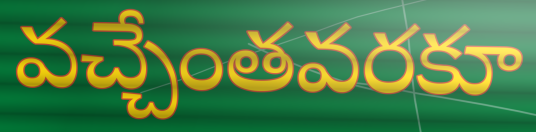
వచ్చేంతవరకూ